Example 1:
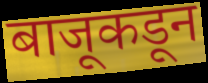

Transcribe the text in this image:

बाजूकडून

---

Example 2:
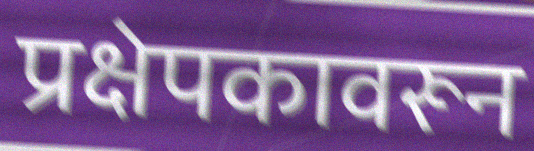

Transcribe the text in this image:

प्रक्षेपकावरून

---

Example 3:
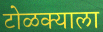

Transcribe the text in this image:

टोळक्याला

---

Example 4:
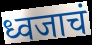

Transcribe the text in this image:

ध्वजाचं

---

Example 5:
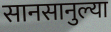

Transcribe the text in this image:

सानसानुल्या